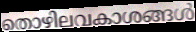
തൊഴിലവകാശങ്ങൾ